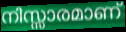
നിസ്സാരമാണ്